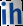
ih